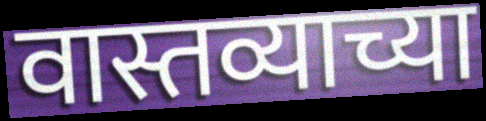
वास्तव्याच्या